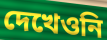
দেখেওনি